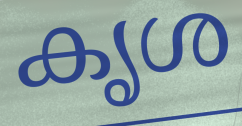
കൃശ